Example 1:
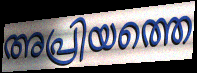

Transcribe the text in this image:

അപ്രിയത്തെ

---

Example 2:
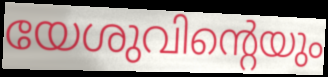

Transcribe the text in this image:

യേശുവിന്റെയും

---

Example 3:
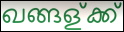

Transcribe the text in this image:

ഖങ്ങള്ക്ക്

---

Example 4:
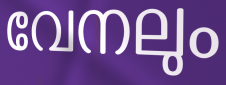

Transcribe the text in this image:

വേനലും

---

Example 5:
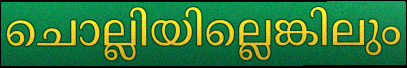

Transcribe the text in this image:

ചൊല്ലിയില്ലെങ്കിലും